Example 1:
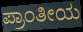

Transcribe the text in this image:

ಪ್ರಾಂತೀಯ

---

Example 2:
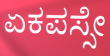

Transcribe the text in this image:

ಏಕಪಸ್ಸೇ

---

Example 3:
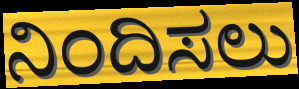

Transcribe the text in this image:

ನಿಂದಿಸಲು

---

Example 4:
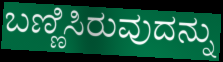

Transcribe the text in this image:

ಬಣ್ಣಿಸಿರುವುದನ್ನು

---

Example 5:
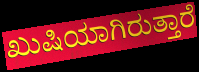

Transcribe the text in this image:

ಖುಷಿಯಾಗಿರುತ್ತಾರೆ